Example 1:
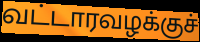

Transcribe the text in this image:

வட்டாரவழக்குச்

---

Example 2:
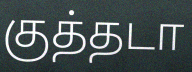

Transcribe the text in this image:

குத்தடா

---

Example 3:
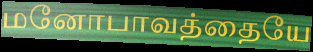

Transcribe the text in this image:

மனோபாவத்தையே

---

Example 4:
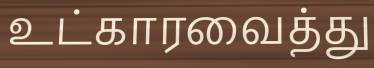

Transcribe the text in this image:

உட்காரவைத்து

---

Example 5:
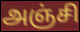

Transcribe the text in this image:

அஞ்சி